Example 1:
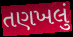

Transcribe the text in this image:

તણખલું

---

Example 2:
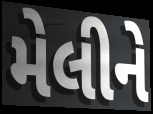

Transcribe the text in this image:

મેલીને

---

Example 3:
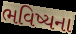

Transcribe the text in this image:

ભવિષ્યના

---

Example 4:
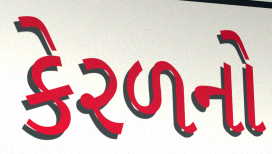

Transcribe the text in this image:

કેરળનો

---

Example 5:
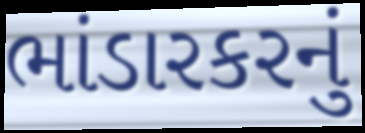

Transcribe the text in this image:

ભાંડારકરનું